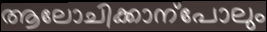
ആലോചിക്കാന്പോലും